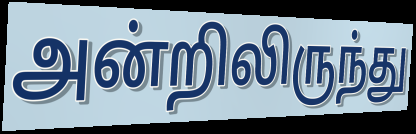
அன்றிலிருந்து